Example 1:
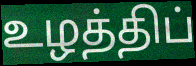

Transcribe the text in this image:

உழத்திப்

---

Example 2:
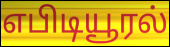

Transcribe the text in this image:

எபிடியூரல்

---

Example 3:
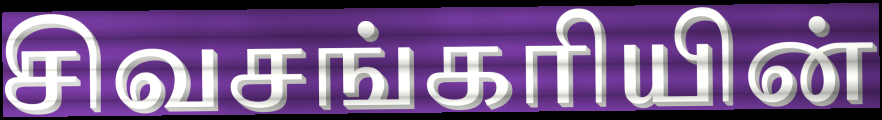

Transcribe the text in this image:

சிவசங்கரியின்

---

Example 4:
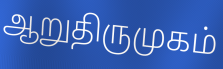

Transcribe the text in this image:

ஆறுதிருமுகம்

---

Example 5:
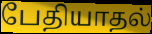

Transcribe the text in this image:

பேதியாதல்